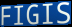
FIGIS